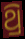
ଥ୍ରି